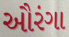
ઔરંગા